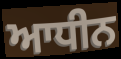
ਆਧੀਨ